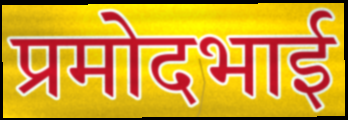
प्रमोदभाई